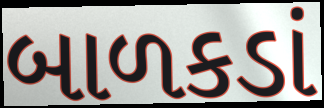
બાળકડાં